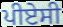
ਪੀਏਸੀ